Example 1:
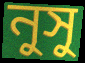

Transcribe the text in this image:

নুসু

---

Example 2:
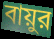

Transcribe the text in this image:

বায়ুর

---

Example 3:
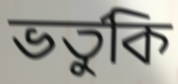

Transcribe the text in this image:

ভর্তুকি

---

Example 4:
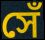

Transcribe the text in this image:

সেঁ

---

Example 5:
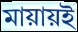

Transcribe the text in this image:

মায়ায়ই